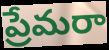
ప్రేమరా